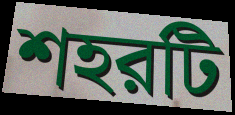
শহরটি